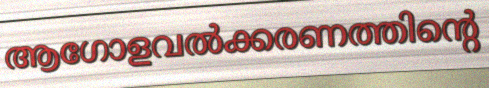
ആഗോളവൽക്കരണത്തിന്റെ